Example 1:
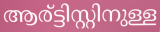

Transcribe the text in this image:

ആര്ട്ടിസ്റ്റിനുള്ള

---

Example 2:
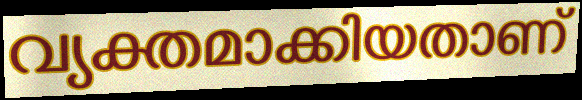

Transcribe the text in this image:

വ്യക്തമാക്കിയതാണ്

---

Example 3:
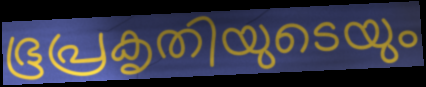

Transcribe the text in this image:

ഭൂപ്രകൃതിയുടെയും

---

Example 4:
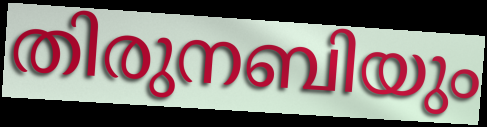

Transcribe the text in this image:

തിരുനബിയും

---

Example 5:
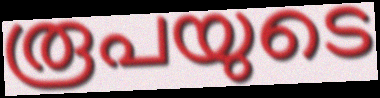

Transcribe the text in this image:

രൂപയുടെ